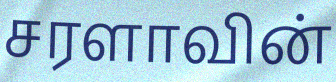
சரளாவின்